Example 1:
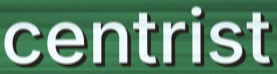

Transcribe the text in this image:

centrist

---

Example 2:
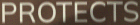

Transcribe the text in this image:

PROTECTS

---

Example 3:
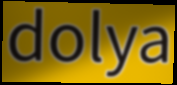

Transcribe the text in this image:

dolya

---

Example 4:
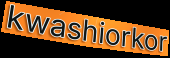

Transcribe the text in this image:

kwashiorkor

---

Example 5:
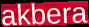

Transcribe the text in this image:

akbera